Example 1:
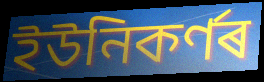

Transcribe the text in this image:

ইউনিকৰ্ণৰ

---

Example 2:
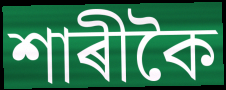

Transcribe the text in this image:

শাৰীকৈ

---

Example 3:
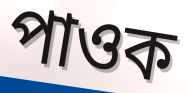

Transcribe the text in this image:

পাওক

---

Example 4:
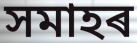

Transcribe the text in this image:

সমাহৰ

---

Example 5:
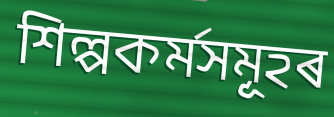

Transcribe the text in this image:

শিল্পকৰ্মসমূহৰ